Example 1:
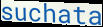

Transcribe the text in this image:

suchata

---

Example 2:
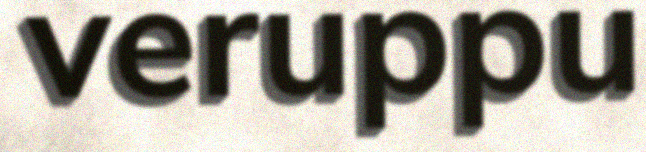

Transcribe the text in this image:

veruppu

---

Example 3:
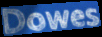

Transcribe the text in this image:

Dowes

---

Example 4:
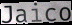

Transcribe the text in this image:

Jaico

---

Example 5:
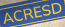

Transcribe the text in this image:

ACRESD